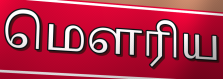
மெளரிய